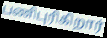
பணிபுரிகிறார்